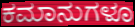
ಕಮಾನುಗಳೂ